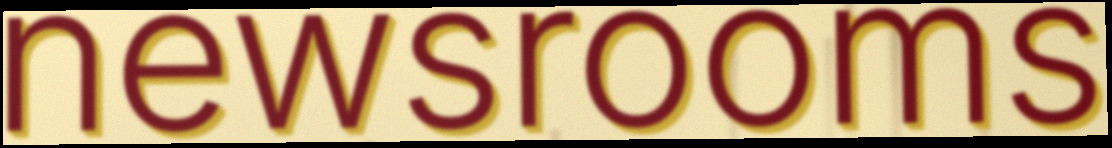
newsrooms